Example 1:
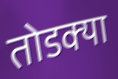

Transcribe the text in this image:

तोडक्‍या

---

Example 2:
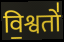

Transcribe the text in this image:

वि॒श्वतो॑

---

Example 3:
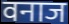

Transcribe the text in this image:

वनाज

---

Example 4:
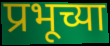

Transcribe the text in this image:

प्रभूच्या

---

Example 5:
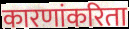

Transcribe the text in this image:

कारणांकरिता